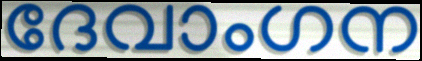
ദേവാംഗന